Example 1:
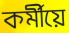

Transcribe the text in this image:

কৰ্মীয়ে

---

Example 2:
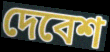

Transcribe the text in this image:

দেবেশ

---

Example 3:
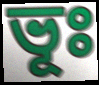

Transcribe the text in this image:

ভূঃ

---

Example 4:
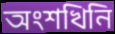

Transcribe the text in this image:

অংশখিনি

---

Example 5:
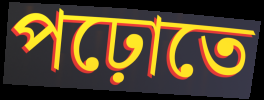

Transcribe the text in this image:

পঢ়োতে